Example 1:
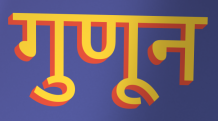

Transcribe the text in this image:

गुणून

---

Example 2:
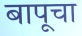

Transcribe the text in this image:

बापूचा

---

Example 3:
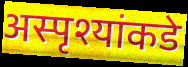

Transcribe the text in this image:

अस्पृश्यांकडे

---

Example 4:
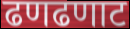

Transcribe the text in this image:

ढणढणाट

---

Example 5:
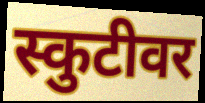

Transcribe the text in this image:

स्कुटीवर